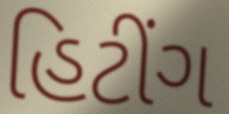
હિટીંગ